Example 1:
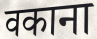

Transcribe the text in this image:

वकाना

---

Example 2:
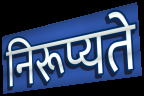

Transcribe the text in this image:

निरूप्यते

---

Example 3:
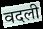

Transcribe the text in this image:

वदली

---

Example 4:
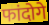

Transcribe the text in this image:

फांदोगे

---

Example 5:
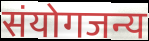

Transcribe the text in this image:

संयोगजन्य